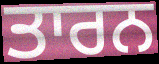
ਤਾਰਨ